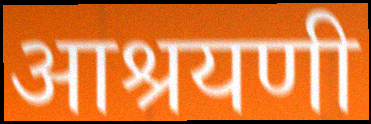
आश्रयणी